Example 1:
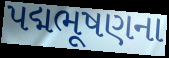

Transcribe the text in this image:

પદ્મભૂષણના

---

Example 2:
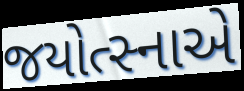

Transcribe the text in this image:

જયોત્સ્નાએ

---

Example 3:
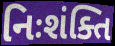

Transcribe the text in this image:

નિઃશંક્તિ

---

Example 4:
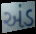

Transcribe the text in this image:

અંડ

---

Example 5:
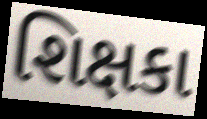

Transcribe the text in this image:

શિક્ષકા